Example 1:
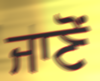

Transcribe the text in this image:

ਜਾਣੋਂ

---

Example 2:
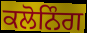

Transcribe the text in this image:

ਕਲੋਨਿੰਗ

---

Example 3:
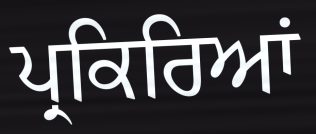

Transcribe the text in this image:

ਪ੍ਰਕਿਰਿਆਂ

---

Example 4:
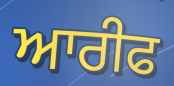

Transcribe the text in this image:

ਆਰੀਫ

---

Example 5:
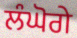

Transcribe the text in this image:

ਲੰਘੋਗੇ